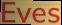
Eves